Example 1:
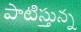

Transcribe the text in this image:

పాటిస్తున్న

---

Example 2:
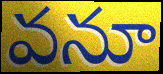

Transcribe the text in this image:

వనూ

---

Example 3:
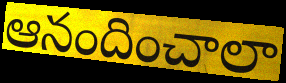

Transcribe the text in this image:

ఆనందించాలా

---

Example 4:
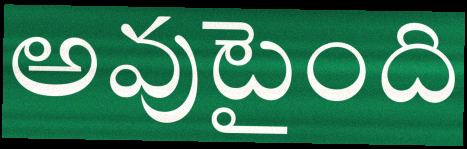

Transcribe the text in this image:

అవుటైంది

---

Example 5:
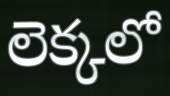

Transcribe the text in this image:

లెక్కలో